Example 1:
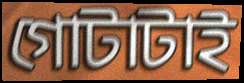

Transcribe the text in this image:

গোটাটাই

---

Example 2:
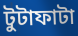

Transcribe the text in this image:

টুটাফাটা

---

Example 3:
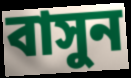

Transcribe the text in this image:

বাসুন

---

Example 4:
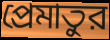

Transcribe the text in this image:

প্রেমাতুর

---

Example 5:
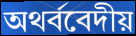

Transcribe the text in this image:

অথর্ববেদীয়